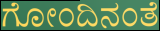
ಗೋಂದಿನಂತೆ